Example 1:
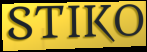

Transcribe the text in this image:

STIKO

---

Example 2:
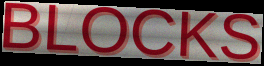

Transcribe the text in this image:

BLOCKS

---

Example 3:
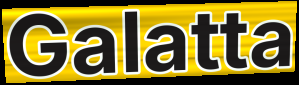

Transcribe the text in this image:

Galatta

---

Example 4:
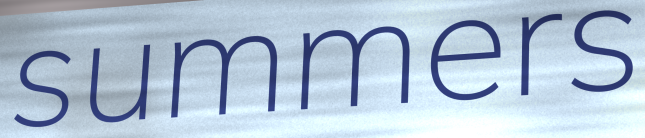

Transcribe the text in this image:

summers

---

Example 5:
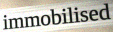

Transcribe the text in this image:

immobilised